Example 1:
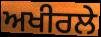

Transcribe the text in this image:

ਅਖੀਰਲੇ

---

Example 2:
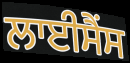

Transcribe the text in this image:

ਲਾਈਸੈਂਸ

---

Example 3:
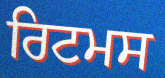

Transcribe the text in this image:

ਰਿਟਮਸ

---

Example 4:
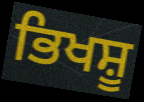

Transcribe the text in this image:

ਭਿਖਸ਼ੂ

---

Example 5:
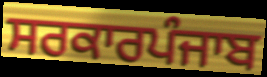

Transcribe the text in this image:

ਸਰਕਾਰਪੰਜਾਬ